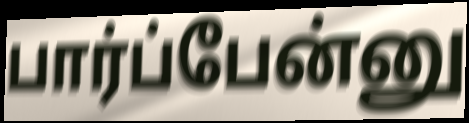
பார்ப்பேன்னு